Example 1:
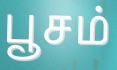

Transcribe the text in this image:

பூசம்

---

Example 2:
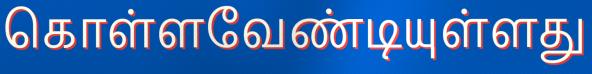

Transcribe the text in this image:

கொள்ளவேண்டியுள்ளது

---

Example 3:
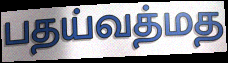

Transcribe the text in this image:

பதய்வத்மத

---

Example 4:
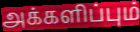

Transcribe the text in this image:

அக்களிப்பும்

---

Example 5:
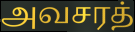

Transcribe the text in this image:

அவசரத்